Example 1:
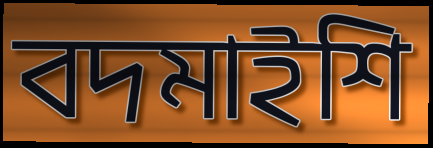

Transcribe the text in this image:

বদমাইশি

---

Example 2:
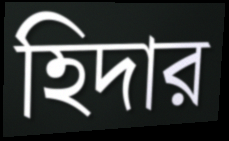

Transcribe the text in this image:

হিদার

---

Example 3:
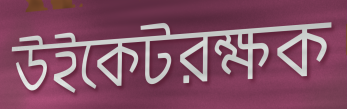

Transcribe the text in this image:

উইকেটরক্ষক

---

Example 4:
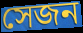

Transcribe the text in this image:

সেজন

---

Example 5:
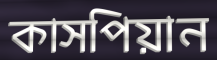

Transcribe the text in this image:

কাসপিয়ান